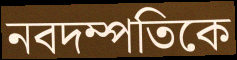
নবদম্পতিকে